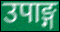
उपाङ्ग